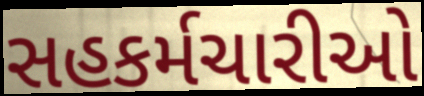
સહકર્મચારીઓ